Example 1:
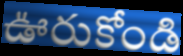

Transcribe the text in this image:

ఊరుకోండి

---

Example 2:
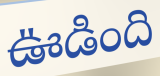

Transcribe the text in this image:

ఊడింది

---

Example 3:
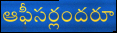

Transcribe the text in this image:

ఆఫీసర్లందరూ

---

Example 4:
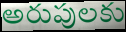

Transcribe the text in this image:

అరుపులకు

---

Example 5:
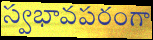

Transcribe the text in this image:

స్వభావపరంగా